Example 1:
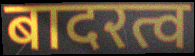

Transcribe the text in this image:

बादरत्व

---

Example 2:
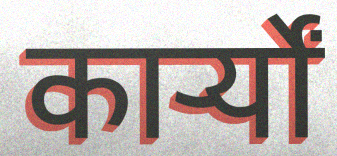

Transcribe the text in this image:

कार्र्यों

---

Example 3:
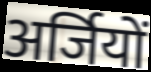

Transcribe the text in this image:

अर्जियों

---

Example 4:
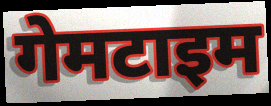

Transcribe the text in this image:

गेमटाइम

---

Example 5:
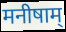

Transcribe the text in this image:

मनीषाम्